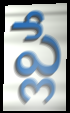
ప్లే